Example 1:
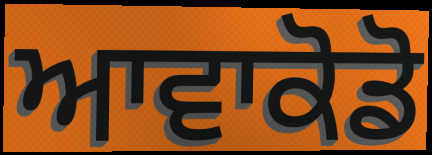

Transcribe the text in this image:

ਆਵਾਕੋਡੋ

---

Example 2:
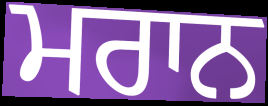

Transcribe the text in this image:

ਮਰਾਨ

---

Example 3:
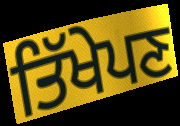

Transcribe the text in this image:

ਤਿੱਖੇਪਣ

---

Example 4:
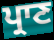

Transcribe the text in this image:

ਪ੍ਰਾਣ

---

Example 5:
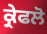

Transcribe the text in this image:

ਕ੍ਰੇਫਲੋ